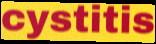
cystitis